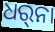
ଧର୍‌ନା